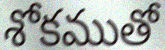
శోకముతో